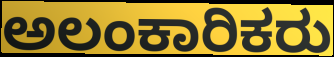
ಅಲಂಕಾರಿಕರು